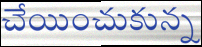
చేయించుకున్న